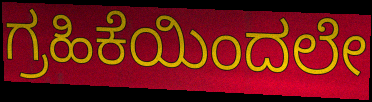
ಗ್ರಹಿಕೆಯಿಂದಲೇ